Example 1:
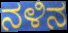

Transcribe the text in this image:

ನಳಿನ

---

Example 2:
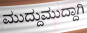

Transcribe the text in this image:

ಮುದ್ದುಮುದ್ದಾಗಿ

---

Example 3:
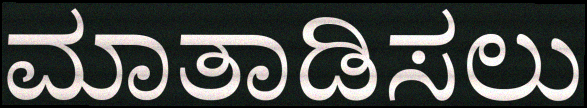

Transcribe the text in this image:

ಮಾತಾಡಿಸಲು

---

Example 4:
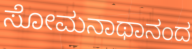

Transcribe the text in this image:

ಸೋಮನಾಥಾನಂದ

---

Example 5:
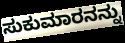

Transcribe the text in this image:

ಸುಕುಮಾರನನ್ನು